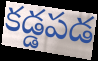
కడ్డపడ